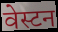
वेस्टन